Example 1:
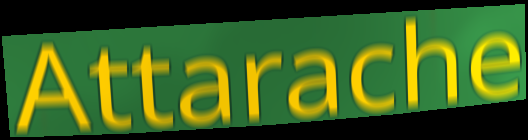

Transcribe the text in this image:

Attarache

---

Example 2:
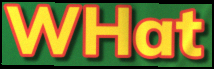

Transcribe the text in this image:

WHat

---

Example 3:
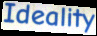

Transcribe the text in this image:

Ideality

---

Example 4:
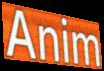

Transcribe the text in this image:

Anim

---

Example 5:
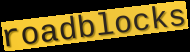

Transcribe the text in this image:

roadblocks